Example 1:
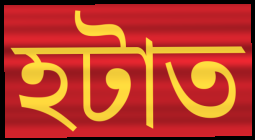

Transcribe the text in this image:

হটাত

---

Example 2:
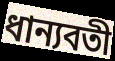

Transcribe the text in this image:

ধান্যবতী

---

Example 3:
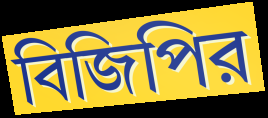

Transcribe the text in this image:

বিজিপির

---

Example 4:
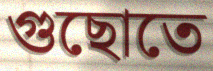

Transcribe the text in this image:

গুছোতে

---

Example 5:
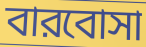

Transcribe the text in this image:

বারবোসা